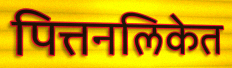
पित्तनलिकेत